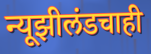
न्यूझीलंडचाही